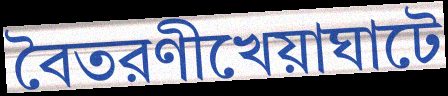
বৈতরণীখেয়াঘাটে